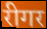
रीगर